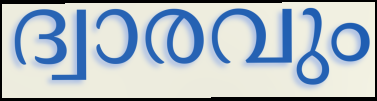
ദ്വാരവും